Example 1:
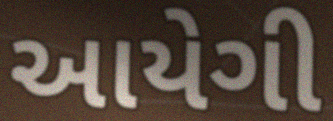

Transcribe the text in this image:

આયેગી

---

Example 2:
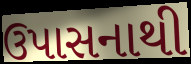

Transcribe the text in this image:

ઉપાસનાથી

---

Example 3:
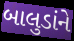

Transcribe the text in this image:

બાલુડાંને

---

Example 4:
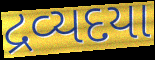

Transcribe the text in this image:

દ્રવ્યદયા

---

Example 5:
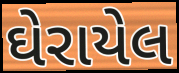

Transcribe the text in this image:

ઘેરાયેલ